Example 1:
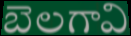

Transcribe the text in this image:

బెలగావి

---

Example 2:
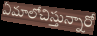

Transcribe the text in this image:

ఏమాలోచిస్తున్నారో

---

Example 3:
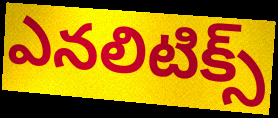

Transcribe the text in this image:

ఎనలిటిక్స్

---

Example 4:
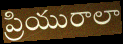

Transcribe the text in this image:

ప్రియురాలా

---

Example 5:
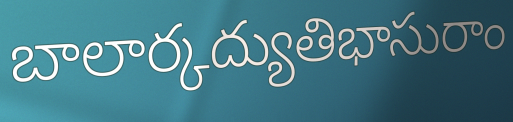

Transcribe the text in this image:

బాలార్కద్యుతిభాసురాం